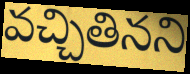
వచ్చితినని